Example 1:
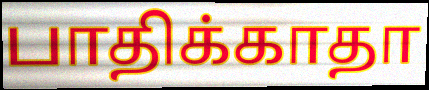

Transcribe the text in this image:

பாதிக்காதா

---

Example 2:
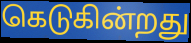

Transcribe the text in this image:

கெடுகின்றது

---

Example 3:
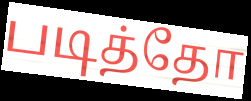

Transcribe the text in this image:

படித்தோ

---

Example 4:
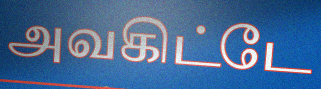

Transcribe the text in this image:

அவகிட்டே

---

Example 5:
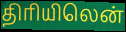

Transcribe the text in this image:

திரியிலென்